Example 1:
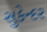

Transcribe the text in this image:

સુકેન્દર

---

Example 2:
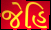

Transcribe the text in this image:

જેહિ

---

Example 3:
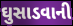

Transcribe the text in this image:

ઘુસાડવાની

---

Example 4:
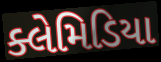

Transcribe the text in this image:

ક્લેમિડિયા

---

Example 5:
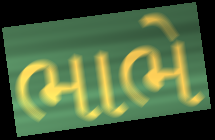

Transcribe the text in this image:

ભાભે